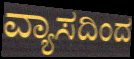
ವ್ಯಾಸದಿಂದ